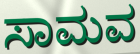
ಸಾಮವ